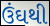
ઉંઘથી